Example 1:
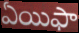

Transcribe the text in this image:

ఏయిఫా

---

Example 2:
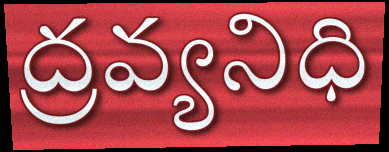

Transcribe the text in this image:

ద్రవ్యనిధి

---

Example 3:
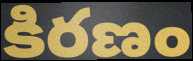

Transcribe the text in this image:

కిరణం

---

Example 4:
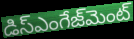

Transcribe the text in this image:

డిస్ఎంగేజ్‌మెంట్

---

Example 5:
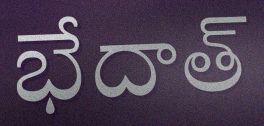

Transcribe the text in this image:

భేదాత్